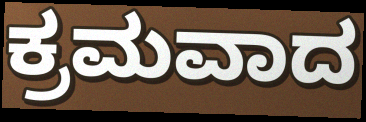
ಕ್ರಮವಾದ